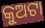
କୁଅଟା